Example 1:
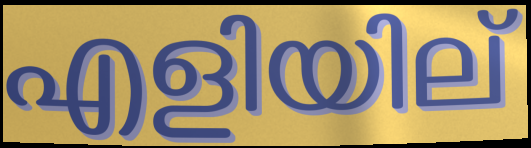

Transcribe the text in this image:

എളിയില്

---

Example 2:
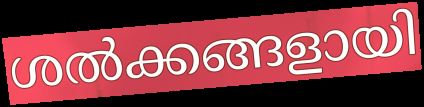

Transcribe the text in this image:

ശൽക്കങ്ങളായി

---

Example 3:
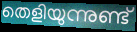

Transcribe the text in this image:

തെളിയുന്നുണ്ട്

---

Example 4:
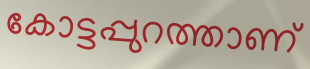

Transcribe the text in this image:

കോട്ടപ്പുറത്താണ്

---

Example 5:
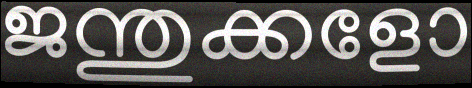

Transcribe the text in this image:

ജന്തുക്കളോ